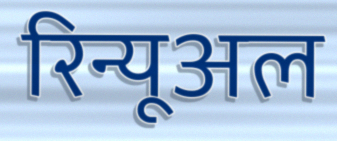
रिन्यूअल